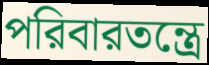
পরিবারতন্ত্রে